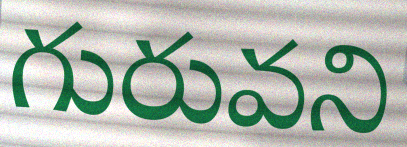
గురువని